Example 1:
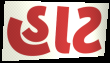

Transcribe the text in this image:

હાટ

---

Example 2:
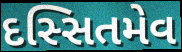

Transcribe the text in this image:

દસ્સિતમેવ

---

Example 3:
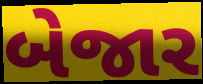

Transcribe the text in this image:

બેજાર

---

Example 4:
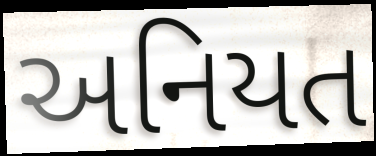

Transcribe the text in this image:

અનિયત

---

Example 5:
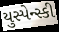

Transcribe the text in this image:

યુસ્પેન્સ્કી